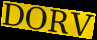
DORV